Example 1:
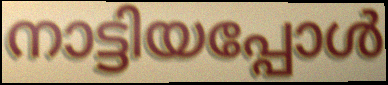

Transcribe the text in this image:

നാട്ടിയപ്പോൾ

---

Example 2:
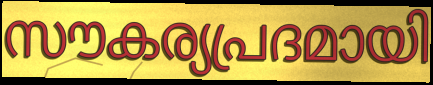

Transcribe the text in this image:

സൗകര്യപ്രദമായി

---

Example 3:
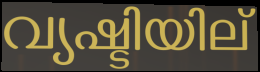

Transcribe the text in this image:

വ്യഷ്ടിയില്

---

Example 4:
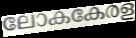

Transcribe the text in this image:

ലോകകേരള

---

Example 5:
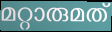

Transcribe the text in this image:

മറ്റാരുമത്